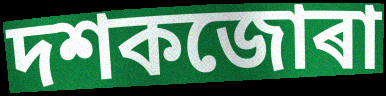
দশকজোৰা